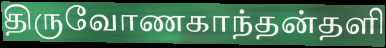
திருவோணகாந்தன்தளி